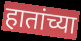
हातांच्या